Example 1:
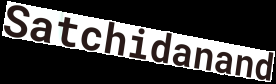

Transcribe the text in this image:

Satchidanand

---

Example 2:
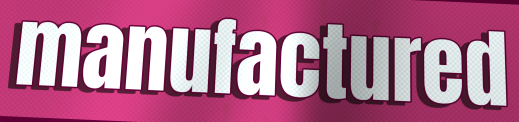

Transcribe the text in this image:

manufactured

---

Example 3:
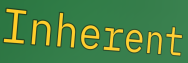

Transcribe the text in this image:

Inherent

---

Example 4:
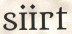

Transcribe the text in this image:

siirt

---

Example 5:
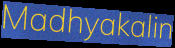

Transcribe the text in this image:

Madhyakalin